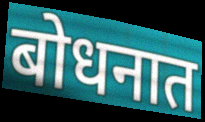
बोधनात